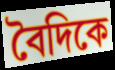
বৈদিকে